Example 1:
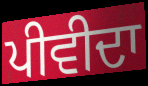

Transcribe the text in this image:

ਪੀਵੀਦਾ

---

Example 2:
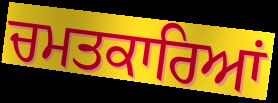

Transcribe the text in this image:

ਚਮਤਕਾਰਿਆਂ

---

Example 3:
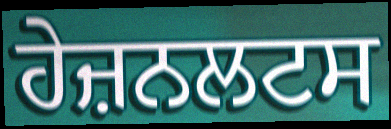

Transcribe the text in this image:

ਹੇਜ਼ਨਲਟਸ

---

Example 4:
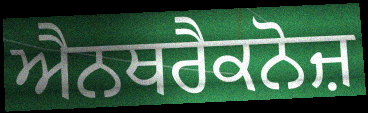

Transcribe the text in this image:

ਐਨਥਰੈਕਨੋਜ਼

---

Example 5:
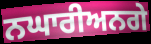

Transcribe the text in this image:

ਨਘਾਰੀਅਨਗੇ